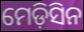
ମେଡ଼ିସିନ